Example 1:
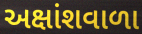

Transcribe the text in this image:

અક્ષાંશવાળા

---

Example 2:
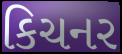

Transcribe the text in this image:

કિચનર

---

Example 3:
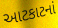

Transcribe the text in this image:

આટકાટનાં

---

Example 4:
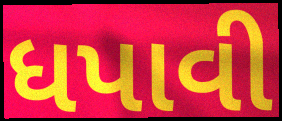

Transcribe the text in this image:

ધપાવી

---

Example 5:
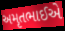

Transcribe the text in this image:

અમૃતભાઈએ